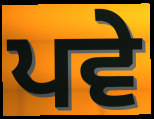
ਪਵੇ